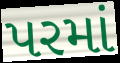
પરમાં